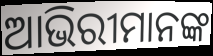
ଆଭିରୀମାନଙ୍କ